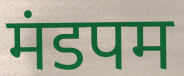
मंडपम